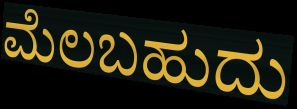
ಮೆಲಬಹುದು